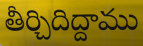
తీర్చిదిద్దాము